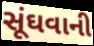
સૂંઘવાની